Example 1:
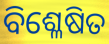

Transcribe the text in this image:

ବିଶ୍ଳେଷିତ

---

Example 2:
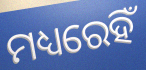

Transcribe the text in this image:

ମଧ୍ୟରେହିଁ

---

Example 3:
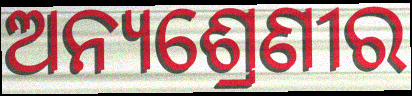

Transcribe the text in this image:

ଅନ୍ୟଶ୍ରେଣୀର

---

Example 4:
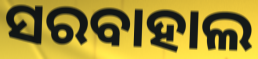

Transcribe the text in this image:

ସରବାହାଲ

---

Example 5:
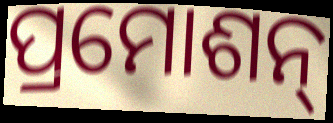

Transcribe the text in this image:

ପ୍ରମୋଶନ୍